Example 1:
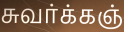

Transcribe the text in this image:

சுவர்க்கஞ்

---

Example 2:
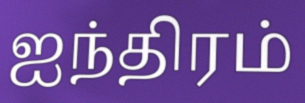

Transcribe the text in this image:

ஐந்திரம்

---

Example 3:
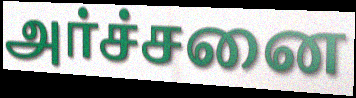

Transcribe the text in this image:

அர்ச்சனை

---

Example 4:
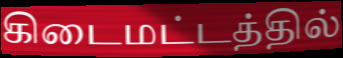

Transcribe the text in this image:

கிடைமட்டத்தில்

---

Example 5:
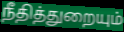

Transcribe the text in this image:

நீதித்துறையும்